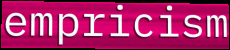
empricism